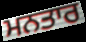
ਮਨਤਾਰ